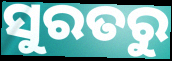
ସୁରତରୁ